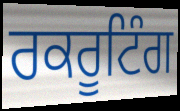
ਰਕਰੂਟਿੰਗ